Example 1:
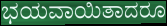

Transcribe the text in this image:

ಭಯವಾಯಿತಾದರೂ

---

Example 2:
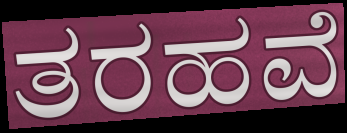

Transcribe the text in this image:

ತರಹವೆ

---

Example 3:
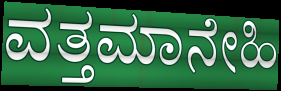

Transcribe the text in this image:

ವತ್ತಮಾನೇಹಿ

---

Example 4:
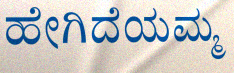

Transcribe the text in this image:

ಹೇಗಿದೆಯಮ್ಮ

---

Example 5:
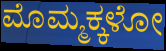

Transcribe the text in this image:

ಮೊಮ್ಮಕ್ಕಳೋ